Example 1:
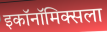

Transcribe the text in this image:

इकॉनॉमिक्सला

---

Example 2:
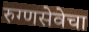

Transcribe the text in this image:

रुग्णसेवेचा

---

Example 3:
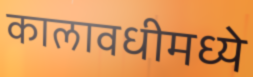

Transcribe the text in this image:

कालावधीमध्ये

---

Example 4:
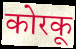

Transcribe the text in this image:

कोरकू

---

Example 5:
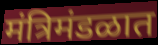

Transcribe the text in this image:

मंत्रिमंडळात